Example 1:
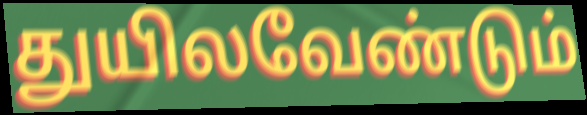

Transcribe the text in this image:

துயிலவேண்டும்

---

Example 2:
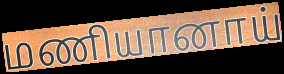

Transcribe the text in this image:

மணியானாய்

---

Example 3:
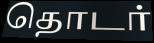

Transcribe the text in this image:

தொடர்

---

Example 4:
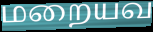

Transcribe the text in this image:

மறையவ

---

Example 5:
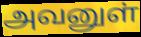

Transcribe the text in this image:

அவனுள்